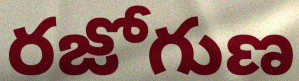
రజోగుణ